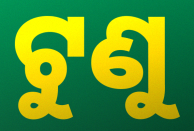
ଟୁଣୁ